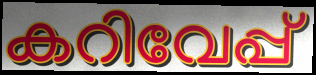
കറിവേപ്പ്